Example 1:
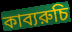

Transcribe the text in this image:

কাব্যরুচি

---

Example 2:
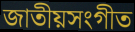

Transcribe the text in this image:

জাতীয়সংগীত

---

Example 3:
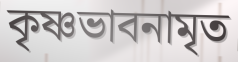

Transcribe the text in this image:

কৃষ্ণভাবনামৃত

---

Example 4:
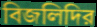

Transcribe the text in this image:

বিজলিদির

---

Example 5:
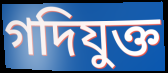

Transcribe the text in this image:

গদিযুক্ত